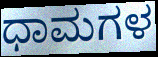
ಧಾಮಗಳ